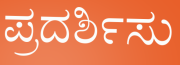
ಪ್ರದರ್ಶಿಸು